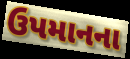
ઉપમાનના